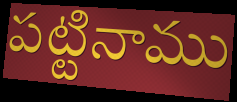
పట్టినాము